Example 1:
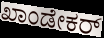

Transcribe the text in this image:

ಖಾಂಡೇಕರ್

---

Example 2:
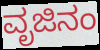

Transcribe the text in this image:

ವೃಜಿನಂ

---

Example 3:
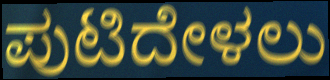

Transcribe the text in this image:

ಪುಟಿದೇಳಲು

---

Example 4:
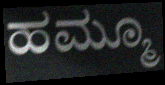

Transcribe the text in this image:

ಹಮ್ಮೂ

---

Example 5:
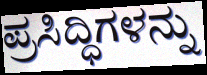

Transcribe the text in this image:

ಪ್ರಸಿದ್ಧಿಗಳನ್ನು